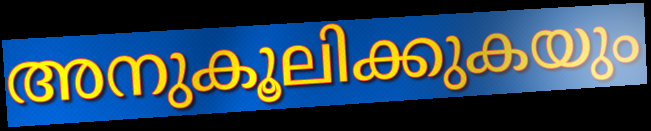
അനുകൂലിക്കുകയും